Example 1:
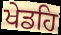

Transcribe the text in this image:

ਖੇਡਹਿ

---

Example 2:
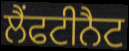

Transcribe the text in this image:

ਲੈਂਫਟੀਨੈਟ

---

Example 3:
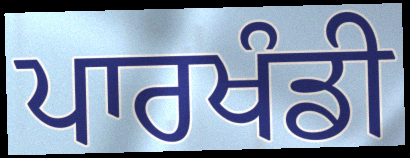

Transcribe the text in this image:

ਪਾਰਖੰਡੀ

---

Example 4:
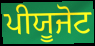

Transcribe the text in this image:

ਪੀਯੂਜੋਟ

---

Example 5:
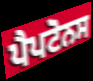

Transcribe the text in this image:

ਪੈਪਟੋਨਸ